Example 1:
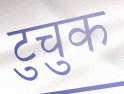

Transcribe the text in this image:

टुचुक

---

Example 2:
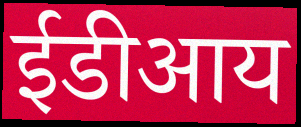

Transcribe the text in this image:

ईडीआय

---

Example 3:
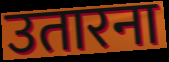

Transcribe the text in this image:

उतारना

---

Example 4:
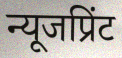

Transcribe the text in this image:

न्यूजप्रिंट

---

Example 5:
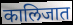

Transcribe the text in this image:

कालिजात